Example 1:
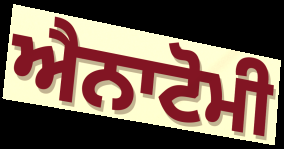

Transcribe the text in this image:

ਐਨਾਟੋਮੀ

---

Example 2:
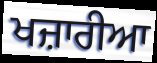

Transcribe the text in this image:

ਖਜ਼ਾਰੀਆ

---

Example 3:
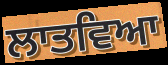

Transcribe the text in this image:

ਲਾਤਵਿਆ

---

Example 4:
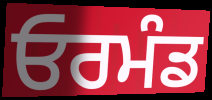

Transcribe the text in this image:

ਓਰਮੰਡ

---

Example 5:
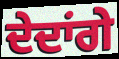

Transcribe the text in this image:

ਦੇਦਾਂਗੇ